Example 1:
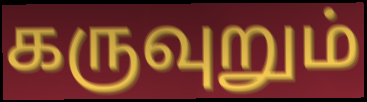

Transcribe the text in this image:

கருவுறும்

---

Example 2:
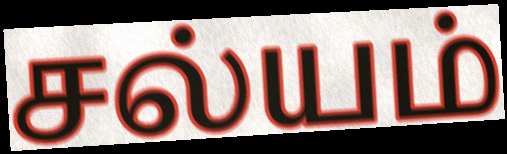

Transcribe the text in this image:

சல்யம்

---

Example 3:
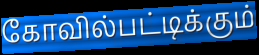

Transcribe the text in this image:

கோவில்பட்டிக்கும்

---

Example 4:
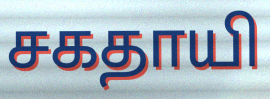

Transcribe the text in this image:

சகதாயி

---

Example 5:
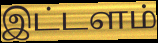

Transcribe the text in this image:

இட்டளம்